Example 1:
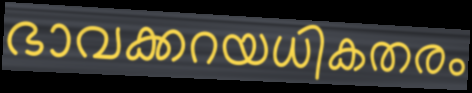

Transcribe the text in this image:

ഭാവക്കറയധികതരം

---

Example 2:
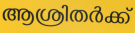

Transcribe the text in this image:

ആശ്രിതർക്ക്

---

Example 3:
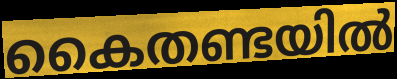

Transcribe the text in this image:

കൈതണ്ടയിൽ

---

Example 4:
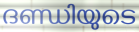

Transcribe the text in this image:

ദണ്ഡിയുടെ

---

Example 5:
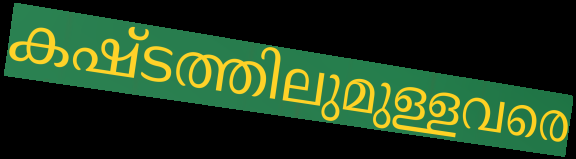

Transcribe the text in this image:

കഷ്ടത്തിലുമുള്ളവരെ